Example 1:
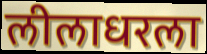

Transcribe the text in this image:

लीलाधरला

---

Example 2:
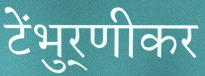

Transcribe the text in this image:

टेंभुर्णीकर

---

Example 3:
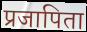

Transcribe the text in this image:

प्रजापिता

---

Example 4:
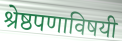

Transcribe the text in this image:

श्रेष्ठपणाविषयी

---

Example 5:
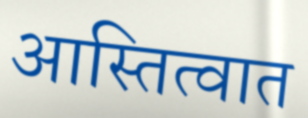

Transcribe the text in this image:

आस्तित्वात